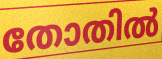
തോതിൽ